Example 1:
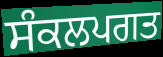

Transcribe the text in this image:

ਸੰਕਲਪਗਤ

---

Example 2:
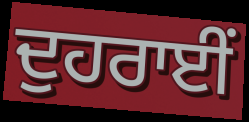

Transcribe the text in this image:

ਦੁਹਰਾਈਂ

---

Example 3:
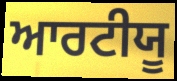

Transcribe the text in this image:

ਆਰਟੀਯੂ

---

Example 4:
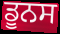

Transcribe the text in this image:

ਡੂਨਸ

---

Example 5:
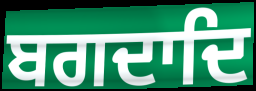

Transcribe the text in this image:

ਬਗਦਾਦਿ